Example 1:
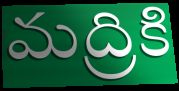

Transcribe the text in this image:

మద్రికి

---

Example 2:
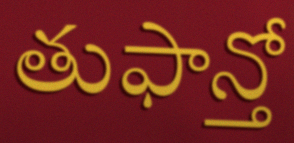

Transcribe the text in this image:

తుఫాన్తో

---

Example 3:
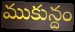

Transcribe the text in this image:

ముకున్దం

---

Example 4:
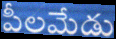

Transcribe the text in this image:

పీలమేడు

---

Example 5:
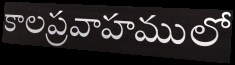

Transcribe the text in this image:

కాలప్రవాహములో